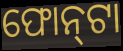
ଫୋନ୍‍ଟା